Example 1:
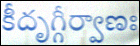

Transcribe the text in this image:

కీదృగ్గీర్వాణః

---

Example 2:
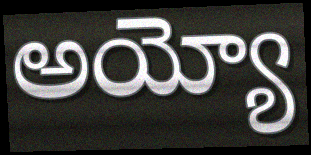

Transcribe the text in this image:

అయ్యో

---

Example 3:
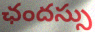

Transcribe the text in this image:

ఛందస్సు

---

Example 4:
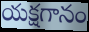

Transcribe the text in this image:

యక్షగానం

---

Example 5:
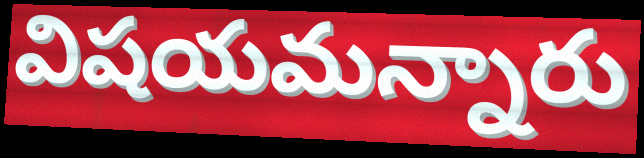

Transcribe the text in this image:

విషయమన్నారు